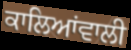
ਕਾਲਿਆਂਵਾਲੀ